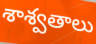
శాశ్వతాలు